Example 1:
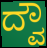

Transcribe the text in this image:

ದ್ವೌ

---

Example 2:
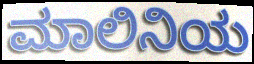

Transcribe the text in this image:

ಮಾಲಿನಿಯ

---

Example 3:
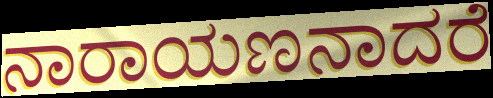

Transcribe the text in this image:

ನಾರಾಯಣನಾದರೆ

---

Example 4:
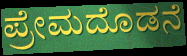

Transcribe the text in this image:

ಪ್ರೇಮದೊಡನೆ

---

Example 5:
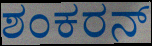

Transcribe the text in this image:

ಶಂಕರನ್